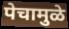
पेचामुळे